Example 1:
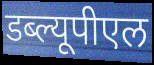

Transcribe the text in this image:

डब्ल्यूपीएल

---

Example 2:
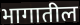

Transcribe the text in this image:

भागातील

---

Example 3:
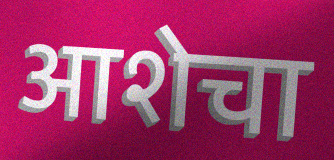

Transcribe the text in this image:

आशेचा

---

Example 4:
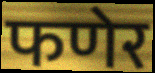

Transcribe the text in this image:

फणेर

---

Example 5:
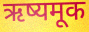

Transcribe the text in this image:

ऋष्यमूक